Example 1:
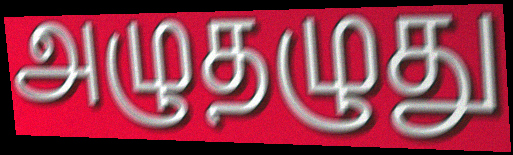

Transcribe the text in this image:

அழுதழுது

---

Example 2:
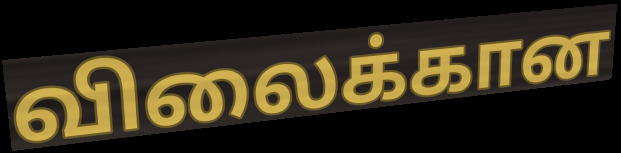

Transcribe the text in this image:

விலைக்கான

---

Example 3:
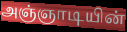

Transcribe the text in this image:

அஞ்ஞாடியின்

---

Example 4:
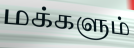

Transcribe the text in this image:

மக்களும்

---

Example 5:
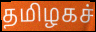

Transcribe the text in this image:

தமிழகச்